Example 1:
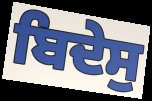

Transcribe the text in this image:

ਬਿਦੇਸੁ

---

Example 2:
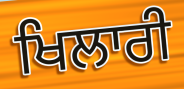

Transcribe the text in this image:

ਖਿਲਾਰੀ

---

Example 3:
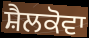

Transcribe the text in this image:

ਸ਼ੈਲਕੋਵਾ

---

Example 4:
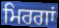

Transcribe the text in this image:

ਮਿਰਗਾਂ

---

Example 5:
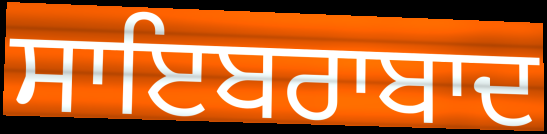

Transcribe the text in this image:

ਸਾਇਬਰਾਬਾਦ